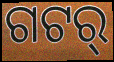
ଗଟର୍